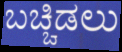
ಬಚ್ಚಿಡಲು